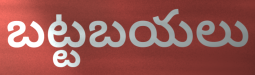
బట్టబయలు